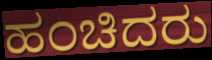
ಹಂಚಿದರು